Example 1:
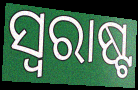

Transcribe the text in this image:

ସ୍ୱରାଷ୍ଟ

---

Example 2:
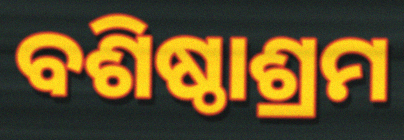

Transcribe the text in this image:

ବଶିଷ୍ଠାଶ୍ରମ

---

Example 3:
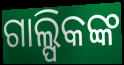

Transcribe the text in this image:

ଗାଲ୍ପିକଙ୍କ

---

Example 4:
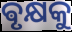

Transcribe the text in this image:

ଵୃକ୍ଷକୁ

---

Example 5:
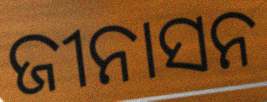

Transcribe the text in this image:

ଜୀନାସନ